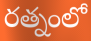
రత్నంలో